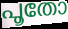
പൂതോ